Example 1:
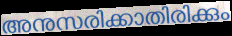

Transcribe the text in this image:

അനുസരിക്കാതിരിക്കും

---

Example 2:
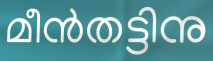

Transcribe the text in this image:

മീൻതട്ടിനു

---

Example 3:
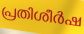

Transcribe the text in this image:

പ്രതിശീർഷ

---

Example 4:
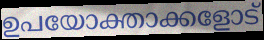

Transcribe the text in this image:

ഉപയോക്താക്കളോട്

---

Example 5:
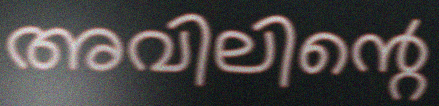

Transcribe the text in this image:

അവിലിന്റെ